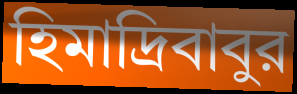
হিমাদ্রিবাবুর